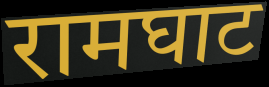
रामघाट